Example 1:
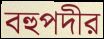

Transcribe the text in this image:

বহুপদীর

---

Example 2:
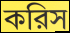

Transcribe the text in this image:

করিস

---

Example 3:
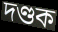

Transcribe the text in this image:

দণ্ডক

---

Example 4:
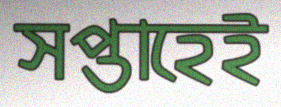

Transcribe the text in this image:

সপ্তাহেই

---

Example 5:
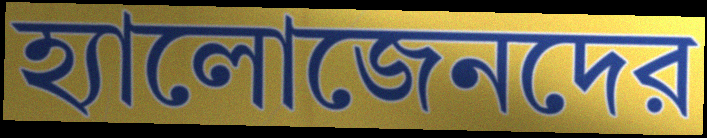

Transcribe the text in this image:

হ্যালোজেনদের